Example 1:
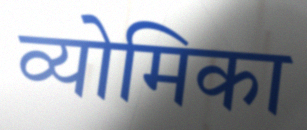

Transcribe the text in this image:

व्योमिका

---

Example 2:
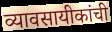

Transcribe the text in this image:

व्यावसायीकांची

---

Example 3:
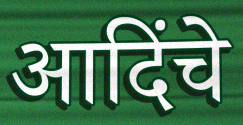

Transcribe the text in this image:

आदिंचे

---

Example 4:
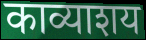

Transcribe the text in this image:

काव्याशय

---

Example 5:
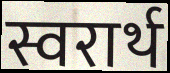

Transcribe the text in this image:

स्वरार्थ